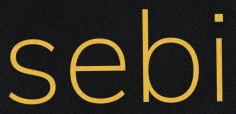
sebi